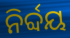
ନିର୍ବ୍ଦୟ